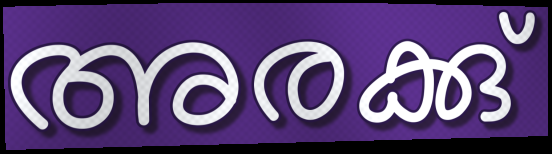
അരക്കു്